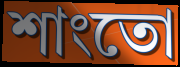
শাংতো